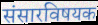
संसारविषयक